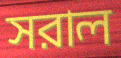
সরাল